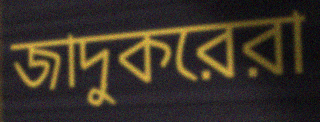
জাদুকরেরা